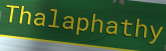
Thalaphathy